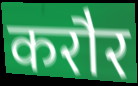
करौर